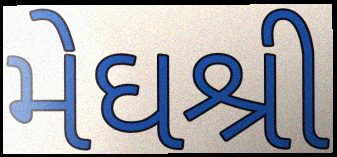
મેઘશ્રી